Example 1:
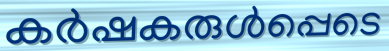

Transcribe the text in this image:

കർഷകരുൾപ്പെടെ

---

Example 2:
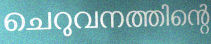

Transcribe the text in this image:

ചെറുവനത്തിന്റെ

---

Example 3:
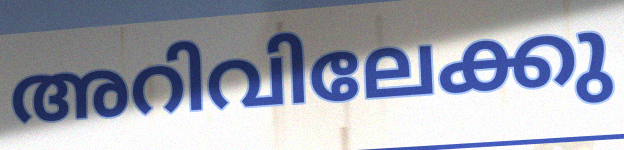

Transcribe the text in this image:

അറിവിലേക്കു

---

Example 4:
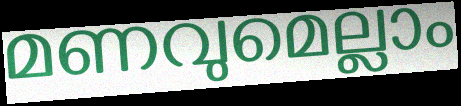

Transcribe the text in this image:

മണവുമെല്ലാം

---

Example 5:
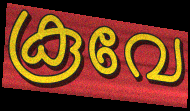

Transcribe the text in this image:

കൂവേ